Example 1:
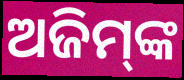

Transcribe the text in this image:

ଅଜିମ୍‌ଙ୍କ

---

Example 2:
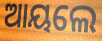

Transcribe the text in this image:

ଆୟଲେ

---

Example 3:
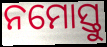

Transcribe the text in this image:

ନମୋସ୍ତୁ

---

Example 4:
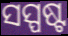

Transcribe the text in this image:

ସସ୍ପଷ୍ଟ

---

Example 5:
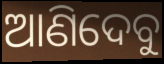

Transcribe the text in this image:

ଆଣିଦେବୁ